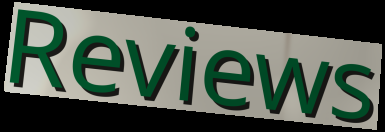
Reviews